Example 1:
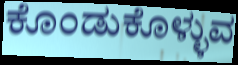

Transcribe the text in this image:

ಕೊಂಡುಕೊಳ್ಳುವ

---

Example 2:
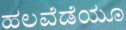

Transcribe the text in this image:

ಹಲವೆಡೆಯೂ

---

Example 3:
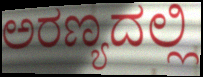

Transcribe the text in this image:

ಅರಣ್ಯದಲ್ಲಿ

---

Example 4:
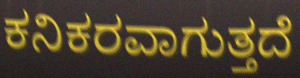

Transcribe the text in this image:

ಕನಿಕರವಾಗುತ್ತದೆ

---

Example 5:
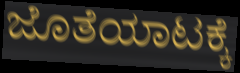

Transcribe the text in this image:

ಜೊತೆಯಾಟಕ್ಕೆ